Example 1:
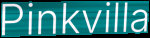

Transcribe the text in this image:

Pinkvilla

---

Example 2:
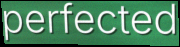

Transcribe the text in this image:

perfected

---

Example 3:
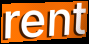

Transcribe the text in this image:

rent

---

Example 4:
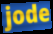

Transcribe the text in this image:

jode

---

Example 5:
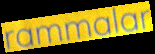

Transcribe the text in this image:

rammalar